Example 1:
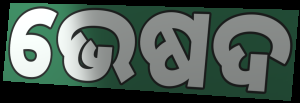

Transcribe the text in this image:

ଭେଷଦ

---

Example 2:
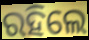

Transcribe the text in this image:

ରହିଲେ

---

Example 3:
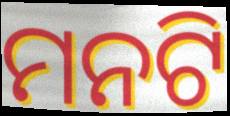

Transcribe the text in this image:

ମନଟି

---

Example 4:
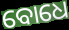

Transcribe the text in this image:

ବୋଧେ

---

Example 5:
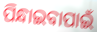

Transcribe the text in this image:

ପିନ୍ଧାଇବାପାଇଁ